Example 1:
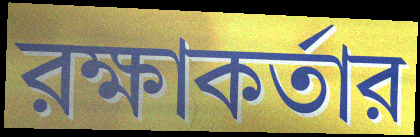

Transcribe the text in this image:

রক্ষাকর্তার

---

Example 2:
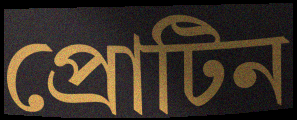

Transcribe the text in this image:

প্রোটিন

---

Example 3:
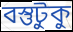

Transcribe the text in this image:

বস্তুটুকু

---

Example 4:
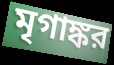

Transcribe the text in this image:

মৃগাঙ্কর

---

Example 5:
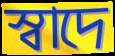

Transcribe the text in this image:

স্বাদে